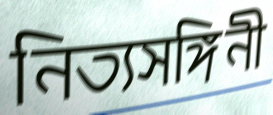
নিত্যসঙ্গিনী